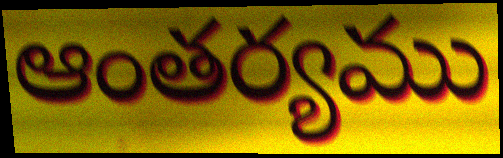
ఆంతర్యము